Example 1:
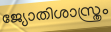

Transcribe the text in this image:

ജ്യോതിശാസ്ത്രം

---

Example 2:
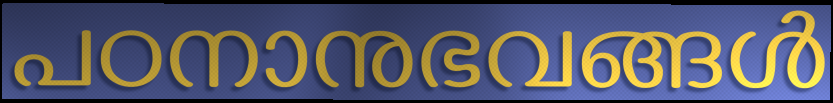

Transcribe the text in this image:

പഠനാനുഭവങ്ങൾ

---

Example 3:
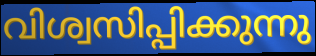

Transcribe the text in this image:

വിശ്വസിപ്പിക്കുന്നു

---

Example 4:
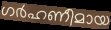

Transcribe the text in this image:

ഗർഹണീമായ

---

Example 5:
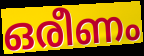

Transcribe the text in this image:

ഒരീണം